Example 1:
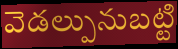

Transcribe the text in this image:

వెడల్పునుబట్టి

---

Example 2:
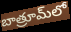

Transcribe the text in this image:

బాత్రూమ్‌లో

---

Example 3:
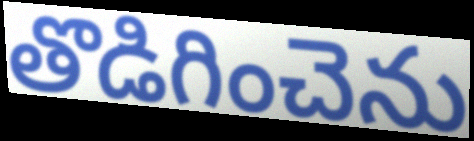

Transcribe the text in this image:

తొడిగించెను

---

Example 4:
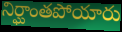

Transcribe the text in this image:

నిర్ఘాంతపోయారు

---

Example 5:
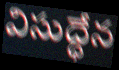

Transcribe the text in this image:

విసుద్ధేన